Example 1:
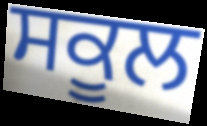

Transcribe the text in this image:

ਸਕੂਲ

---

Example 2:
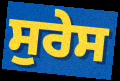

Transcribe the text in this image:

ਸੁਰੇਸ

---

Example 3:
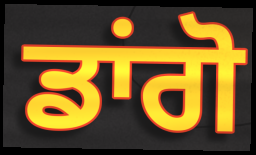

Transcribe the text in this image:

ਡਾਂਗੋ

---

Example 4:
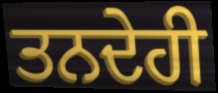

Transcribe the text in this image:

ਤਨਦੇਹੀ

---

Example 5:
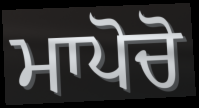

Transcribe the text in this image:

ਮਾਪੋਚੋ